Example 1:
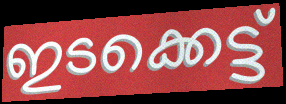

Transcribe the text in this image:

ഇടക്കെട്ട്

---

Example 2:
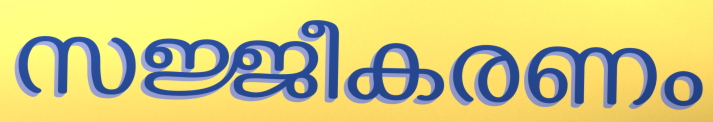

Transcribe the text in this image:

സജ്ജീകരണം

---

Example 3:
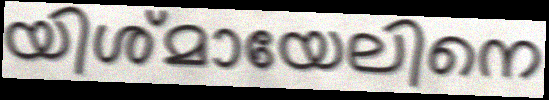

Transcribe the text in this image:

യിശ്മായേലിനെ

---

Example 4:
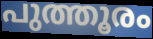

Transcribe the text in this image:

പുത്തൂരം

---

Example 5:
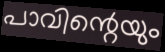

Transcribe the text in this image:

പാവിന്റെയും